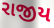
રાજીય